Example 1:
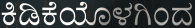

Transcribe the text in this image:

ಕಿಡಿಕೆಯೊಳಗಿಂದ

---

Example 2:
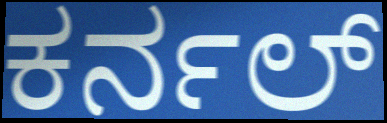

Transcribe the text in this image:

ಕರ್ನಲ್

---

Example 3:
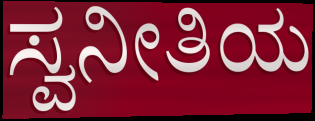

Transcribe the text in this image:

ಸ್ವನೀತಿಯ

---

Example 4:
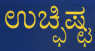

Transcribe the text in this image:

ಉಚ್ಫಿಷ್ಟ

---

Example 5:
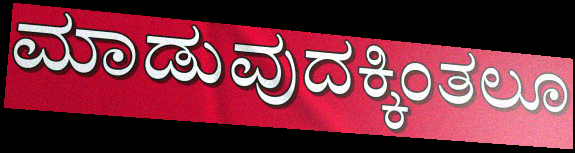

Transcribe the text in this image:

ಮಾಡುವುದಕ್ಕಿಂತಲೂ